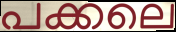
പക്കലെ